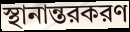
স্থানান্তরকরণ